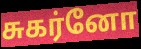
சுகர்னோ